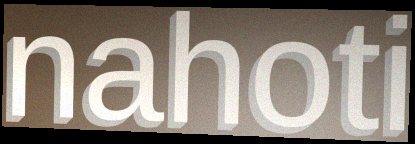
nahoti